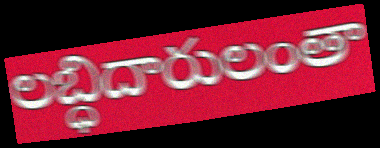
లబ్ధిదారులంతా